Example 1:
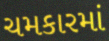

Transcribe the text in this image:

ચમકારમાં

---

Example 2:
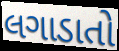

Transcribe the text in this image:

લગાડાતો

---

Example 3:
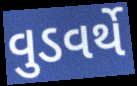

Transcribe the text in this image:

વુડવર્થે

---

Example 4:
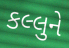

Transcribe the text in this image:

કલ્લુને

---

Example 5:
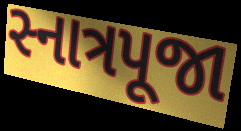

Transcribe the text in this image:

સ્નાત્રપૂજા